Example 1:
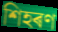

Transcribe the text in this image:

শিহৰণ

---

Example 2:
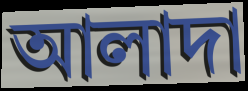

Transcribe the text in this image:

আলাদা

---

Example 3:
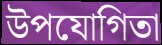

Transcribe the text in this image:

উপযোগিতা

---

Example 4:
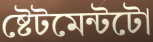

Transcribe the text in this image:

ষ্টেটমেন্টটো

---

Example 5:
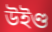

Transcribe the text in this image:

উইণ্ড